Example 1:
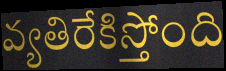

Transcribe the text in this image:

వ్యతిరేకిస్తోంది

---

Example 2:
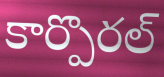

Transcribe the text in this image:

కార్పొరల్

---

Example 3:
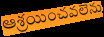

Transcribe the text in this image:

ఆశ్రయించవలెను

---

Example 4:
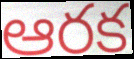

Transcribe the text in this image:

ఆరక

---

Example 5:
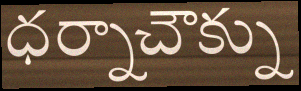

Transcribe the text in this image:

ధర్నాచౌక్ను